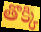
తొక్కి